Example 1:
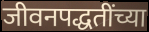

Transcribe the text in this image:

जीवनपद्धतींच्या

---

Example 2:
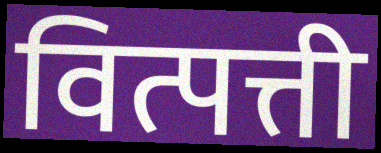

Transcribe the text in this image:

वित्पत्ती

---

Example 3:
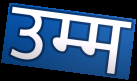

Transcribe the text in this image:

उम्म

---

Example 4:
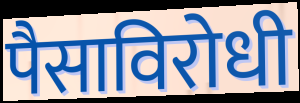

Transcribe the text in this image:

पैसाविरोधी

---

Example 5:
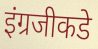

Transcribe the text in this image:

इंग्रजीकडे